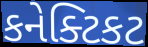
કનેક્ટિકટ